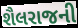
શૈલરાજની